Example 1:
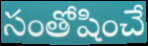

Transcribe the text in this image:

సంతోషించే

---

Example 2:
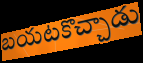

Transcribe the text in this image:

బయటకొచ్చాడు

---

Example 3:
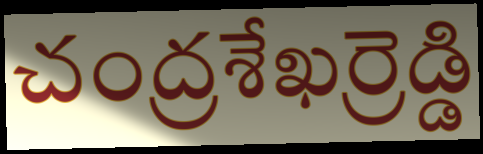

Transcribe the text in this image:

చంద్రశేఖర్రెడ్డి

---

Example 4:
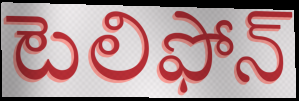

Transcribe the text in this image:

టెలిఫోన్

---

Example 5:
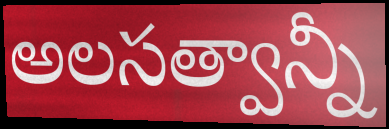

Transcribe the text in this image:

అలసత్వాన్నీ